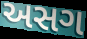
અસગ